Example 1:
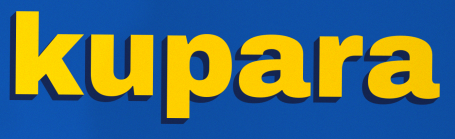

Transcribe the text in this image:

kupara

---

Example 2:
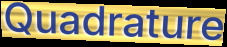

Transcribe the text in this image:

Quadrature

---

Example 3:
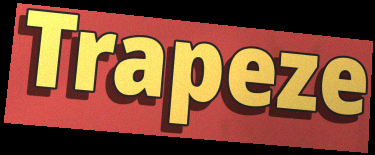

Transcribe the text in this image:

Trapeze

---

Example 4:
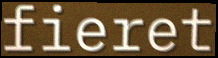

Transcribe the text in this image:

fieret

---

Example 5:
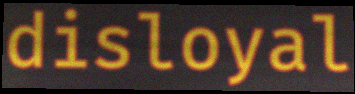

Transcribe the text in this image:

disloyal